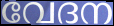
വേദന